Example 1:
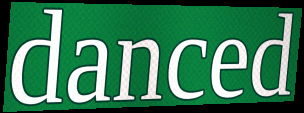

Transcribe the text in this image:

danced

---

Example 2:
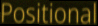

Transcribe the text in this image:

Positional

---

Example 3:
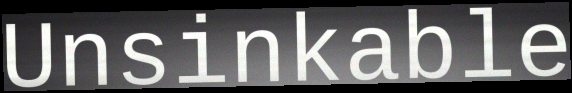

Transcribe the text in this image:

Unsinkable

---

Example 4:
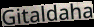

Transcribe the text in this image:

Gitaldaha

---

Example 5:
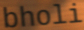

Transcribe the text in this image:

bholi